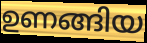
ഉണങ്ങിയ